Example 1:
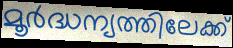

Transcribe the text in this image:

മൂർദ്ധന്യത്തിലേക്ക്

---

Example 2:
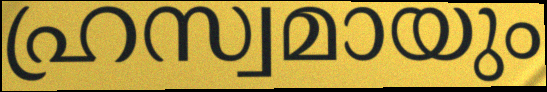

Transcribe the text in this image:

ഹ്രസ്വമായും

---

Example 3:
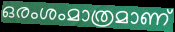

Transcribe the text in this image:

ഒരംശംമാത്രമാണ്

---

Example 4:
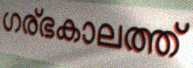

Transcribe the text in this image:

ഗര്ഭകാലത്ത്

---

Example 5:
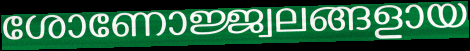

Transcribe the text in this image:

ശോണോജ്ജ്വലങ്ങളായ